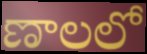
ణాలలో